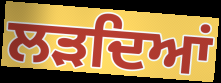
ਲੜਦਿਆਂ